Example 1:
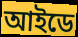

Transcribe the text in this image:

আইডে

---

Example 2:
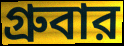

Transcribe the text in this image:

গ্রুবার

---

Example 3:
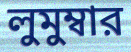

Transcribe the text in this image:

লুমুম্বার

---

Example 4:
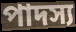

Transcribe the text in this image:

পাদস্য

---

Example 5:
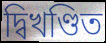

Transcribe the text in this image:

দ্বিখণ্ডিত